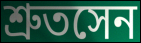
শ্রুতসেন